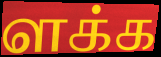
ளக்க